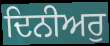
ਦਿਨੀਅਰੁ